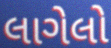
લાગેલો